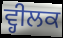
ਵ੍ਹੀਲਕ